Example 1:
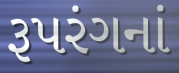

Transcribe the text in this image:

રૂપરંગનાં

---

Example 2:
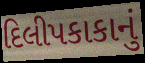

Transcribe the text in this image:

દિલીપકાકાનું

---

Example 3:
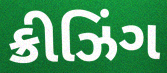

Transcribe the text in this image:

ક્રીઝિંગ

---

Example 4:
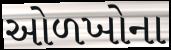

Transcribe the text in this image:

ઓળખોના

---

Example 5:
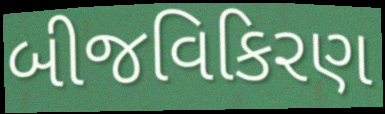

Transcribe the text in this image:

બીજવિકિરણ